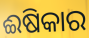
ଈଷିକାର